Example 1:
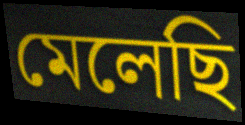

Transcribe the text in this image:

মেলেছি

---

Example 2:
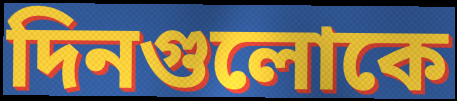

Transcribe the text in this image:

দিনগুলোকে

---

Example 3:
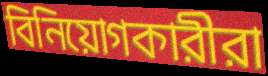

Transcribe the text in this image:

বিনিয়োগকারীরা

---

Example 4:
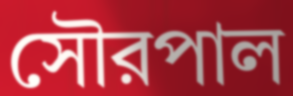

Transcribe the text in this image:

সৌরপাল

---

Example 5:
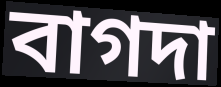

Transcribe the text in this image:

বাগদা